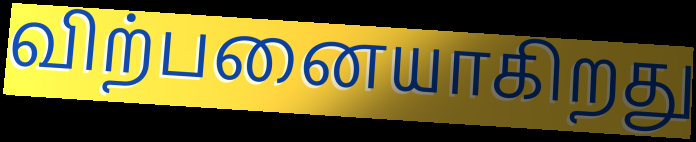
விற்பனையாகிறது